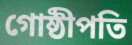
গোষ্ঠীপতি